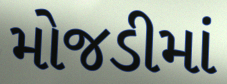
મોજડીમાં